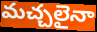
మచ్చలైనా